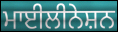
ਮਾਈਲੀਨੇਸ਼ਨ